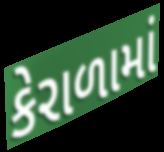
કેરાળામાં